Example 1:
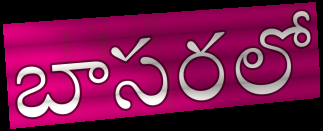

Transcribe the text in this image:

బాసరలో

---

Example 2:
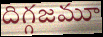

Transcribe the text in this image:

దిగ్గజమూ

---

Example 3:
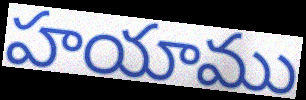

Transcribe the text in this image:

హయాము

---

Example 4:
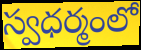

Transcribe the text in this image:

స్వధర్మంలో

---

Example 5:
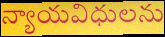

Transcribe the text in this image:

న్యాయవిధులను